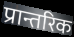
प्रान्तरिक